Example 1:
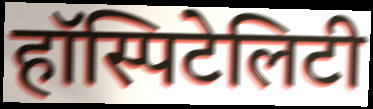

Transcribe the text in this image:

हॉस्पिटेलिटी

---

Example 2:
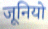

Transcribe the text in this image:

जूनियो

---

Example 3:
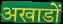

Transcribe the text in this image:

अखाडों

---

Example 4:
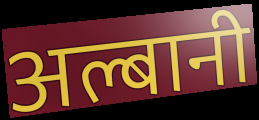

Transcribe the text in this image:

अल्बानी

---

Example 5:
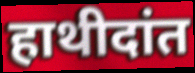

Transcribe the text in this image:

हाथीदांत